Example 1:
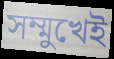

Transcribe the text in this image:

সম্মুখেই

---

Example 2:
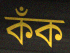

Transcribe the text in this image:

কঁক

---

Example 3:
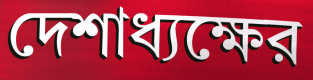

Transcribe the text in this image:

দেশাধ্যক্ষের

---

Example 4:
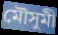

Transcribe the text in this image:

মৌসুমী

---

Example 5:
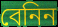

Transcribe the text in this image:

বেনিন